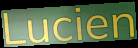
Lucien